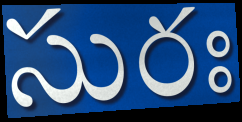
సురః